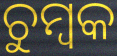
ଚୁମ୍ବକ